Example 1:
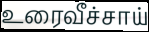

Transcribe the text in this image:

உரைவீச்சாய்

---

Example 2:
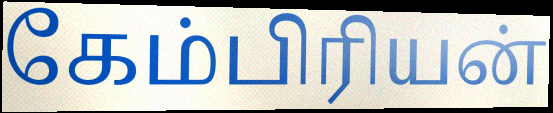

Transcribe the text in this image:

கேம்பிரியன்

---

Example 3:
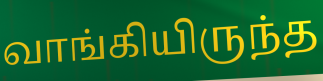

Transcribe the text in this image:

வாங்கியிருந்த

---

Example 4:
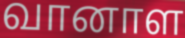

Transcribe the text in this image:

வானாள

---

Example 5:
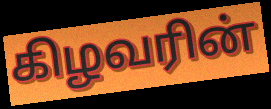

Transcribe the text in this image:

கிழவரின்